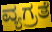
ವ್ಯಗ್ರತೆ